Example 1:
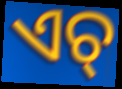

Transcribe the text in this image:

ଏଚ୍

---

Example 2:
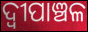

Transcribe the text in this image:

ଦ୍ୱୀପାଞ୍ଚଳ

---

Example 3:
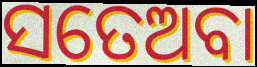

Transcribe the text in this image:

ସତେଅବା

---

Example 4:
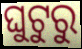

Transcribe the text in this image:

ଘୁଟୁରୁ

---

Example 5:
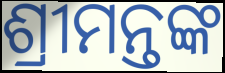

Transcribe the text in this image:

ଶ୍ରୀମନ୍ତଙ୍କ